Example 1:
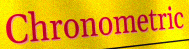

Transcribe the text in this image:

Chronometric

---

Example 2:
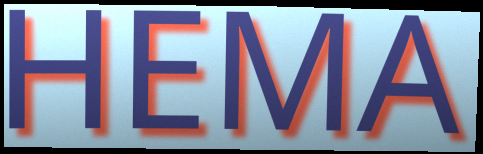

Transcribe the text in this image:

HEMA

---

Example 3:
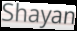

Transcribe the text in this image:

Shayan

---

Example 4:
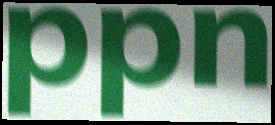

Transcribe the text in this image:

ppn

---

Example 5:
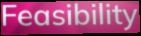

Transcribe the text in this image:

Feasibility